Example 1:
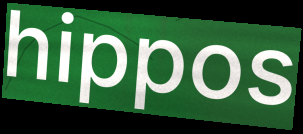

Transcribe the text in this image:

hippos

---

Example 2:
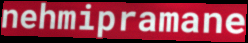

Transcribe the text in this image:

nehmipramane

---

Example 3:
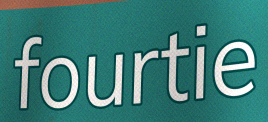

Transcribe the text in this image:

fourtie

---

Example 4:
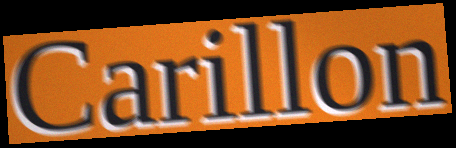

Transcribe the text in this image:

Carillon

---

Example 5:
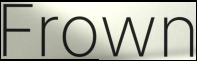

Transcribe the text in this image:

Frown